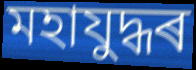
মহাযুদ্ধৰ